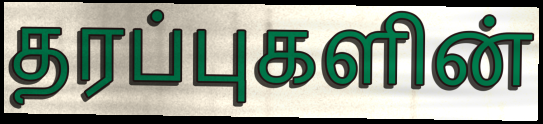
தரப்புகளின்